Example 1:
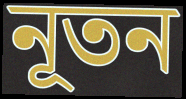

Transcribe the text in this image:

নূতন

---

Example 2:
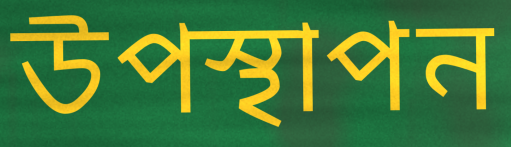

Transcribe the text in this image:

উপস্থাপন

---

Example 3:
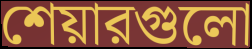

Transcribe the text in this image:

শেয়ারগুলো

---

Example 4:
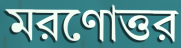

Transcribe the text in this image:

মরণোত্তর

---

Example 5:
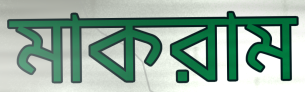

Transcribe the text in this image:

মাকরাম